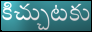
కిచ్చుటకు